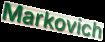
Markovich